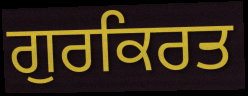
ਗੁਰਕਿਰਤ